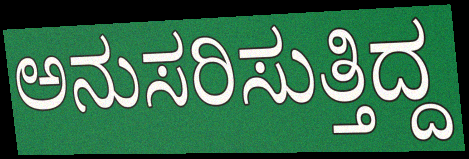
ಅನುಸರಿಸುತ್ತಿದ್ದ